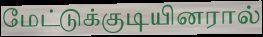
மேட்டுக்குடியினரால்